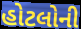
હોટલોની